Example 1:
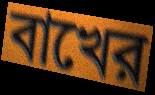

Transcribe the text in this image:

বাখের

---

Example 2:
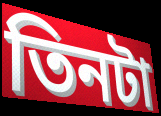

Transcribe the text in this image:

তিনটা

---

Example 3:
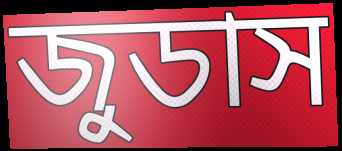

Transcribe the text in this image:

জুডাস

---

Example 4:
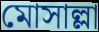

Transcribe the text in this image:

মোসাল্লা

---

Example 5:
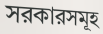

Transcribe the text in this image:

সরকারসমূহ